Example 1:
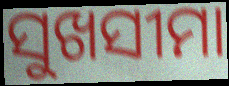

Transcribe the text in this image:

ସୁଖସୀମା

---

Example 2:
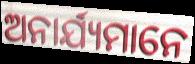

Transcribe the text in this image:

ଅନାର୍ଯ୍ୟମାନେ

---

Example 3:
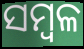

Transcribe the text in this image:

ସମ୍ବଳ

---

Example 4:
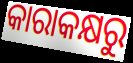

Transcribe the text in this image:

କାରାକକ୍ଷରୁ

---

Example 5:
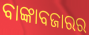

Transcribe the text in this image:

ବାଙ୍କାବଜାରର